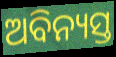
ଅବିନ୍ୟସ୍ତ